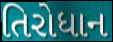
તિરોધાન